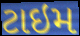
ટાઇમ